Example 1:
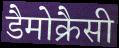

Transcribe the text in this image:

डैमोक्रैसी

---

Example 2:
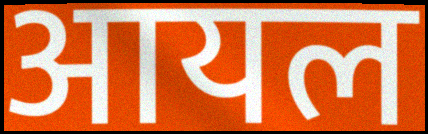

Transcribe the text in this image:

आयल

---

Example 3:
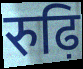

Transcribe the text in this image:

रुढ़ि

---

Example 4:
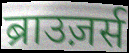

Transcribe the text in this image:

ब्राउज़र्स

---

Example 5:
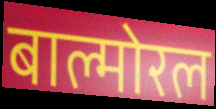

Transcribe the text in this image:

बाल्‍मोरल